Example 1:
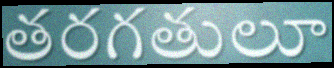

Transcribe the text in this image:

తరగతులూ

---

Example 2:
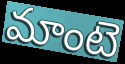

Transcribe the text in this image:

మాంటె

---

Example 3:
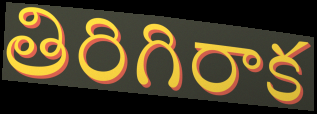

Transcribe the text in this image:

తిరిగిరాక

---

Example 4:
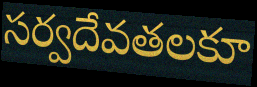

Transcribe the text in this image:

సర్వదేవతలకూ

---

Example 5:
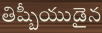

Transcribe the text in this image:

తిష్బీయుడైన